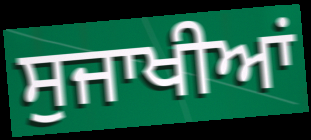
ਸੁਜਾਖੀਆਂ